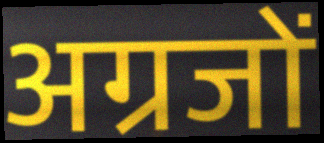
अग्रजों